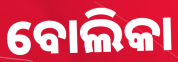
ବୋଲିକା